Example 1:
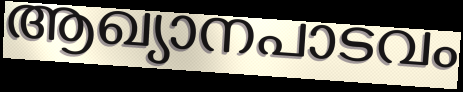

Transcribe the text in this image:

ആഖ്യാനപാടവം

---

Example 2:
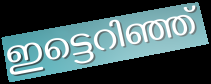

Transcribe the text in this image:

ഇട്ടെറിഞ്ഞ്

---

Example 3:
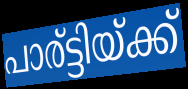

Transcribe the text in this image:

പാര്ട്ടിയ്ക്ക്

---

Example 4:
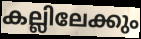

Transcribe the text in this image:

കല്ലിലേക്കും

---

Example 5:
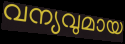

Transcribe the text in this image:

വന്യവുമായ